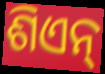
ଶିଏନ୍